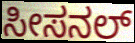
ಸೀಸನಲ್